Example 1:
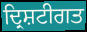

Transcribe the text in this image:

ਦ੍ਰਿਸ਼ਟੀਗਤ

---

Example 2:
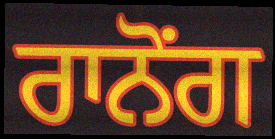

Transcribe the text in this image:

ਰਾਨੋਂਗ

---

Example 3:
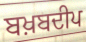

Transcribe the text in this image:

ਬਖ਼ਬਦੀਪ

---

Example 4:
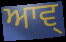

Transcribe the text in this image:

ਆਵ੍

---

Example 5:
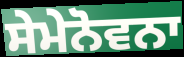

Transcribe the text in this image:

ਸੇਮੇਨੋਵਨਾ